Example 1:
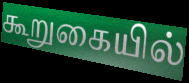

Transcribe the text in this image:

கூறுகையில்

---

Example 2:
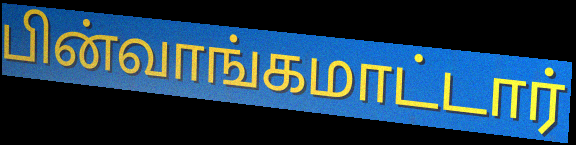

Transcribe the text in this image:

பின்வாங்கமாட்டார்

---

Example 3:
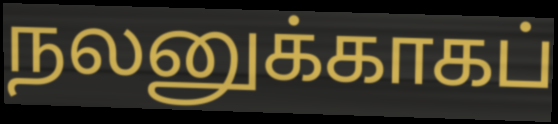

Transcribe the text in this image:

நலனுக்காகப்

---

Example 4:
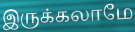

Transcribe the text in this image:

இருக்கலாமே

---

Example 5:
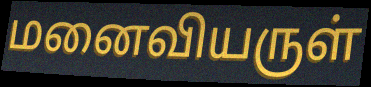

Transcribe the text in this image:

மனைவியருள்